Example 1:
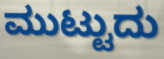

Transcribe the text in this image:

ಮುಟ್ಟುದು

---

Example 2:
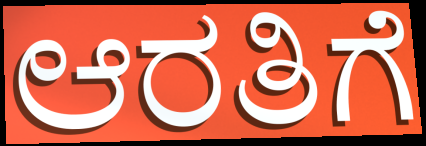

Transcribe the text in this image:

ಆರತಿಗೆ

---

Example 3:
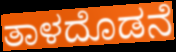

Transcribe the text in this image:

ತಾಳದೊಡನೆ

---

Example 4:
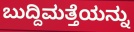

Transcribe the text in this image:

ಬುದ್ದಿಮತ್ತೆಯನ್ನು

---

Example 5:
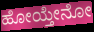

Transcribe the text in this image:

ಹೋಯ್ತೇನೋ